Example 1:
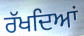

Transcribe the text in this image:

ਰੱਖਦਿਆਂ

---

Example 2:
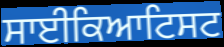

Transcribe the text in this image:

ਸਾਈਕਿਆਟਿਸਟ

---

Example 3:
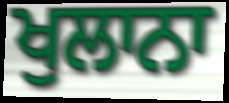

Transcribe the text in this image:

ਖੁਲਾਨਾ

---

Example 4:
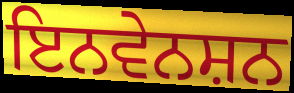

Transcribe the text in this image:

ਇਨਵੇਨਸ਼ਨ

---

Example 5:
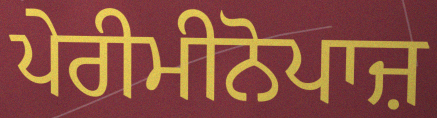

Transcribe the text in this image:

ਪੇਰੀਮੀਨੋਪਾਜ਼